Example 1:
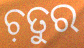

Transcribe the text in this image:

ଚ଼ତୁର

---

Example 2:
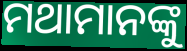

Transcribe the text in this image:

ମଥାମାନଙ୍କୁ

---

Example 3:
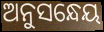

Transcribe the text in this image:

ଅନୁସନ୍ଧେୟ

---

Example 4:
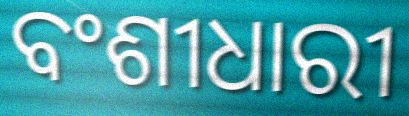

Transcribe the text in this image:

ବଂଶୀଧାରୀ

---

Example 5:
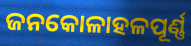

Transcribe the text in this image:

ଜନକୋଳାହଳପୂର୍ଣ୍ଣ